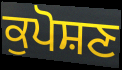
ਕੁਪੋਸ਼ਣ